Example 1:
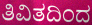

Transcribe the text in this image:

ತಿವಿತದಿಂದ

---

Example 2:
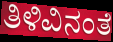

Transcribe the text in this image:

ತಿಳಿವಿನಂತೆ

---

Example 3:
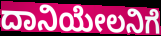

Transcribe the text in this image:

ದಾನಿಯೇಲನಿಗೆ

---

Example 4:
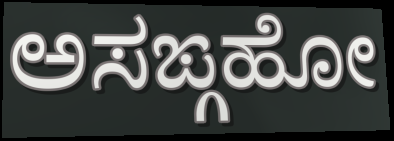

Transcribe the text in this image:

ಅಸಙ್ಗಹೋ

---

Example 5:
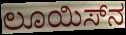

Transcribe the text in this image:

ಲೂಯಿಸ್‌ನ